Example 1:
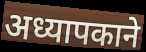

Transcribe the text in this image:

अध्यापकाने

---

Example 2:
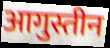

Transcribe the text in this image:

आगुस्तीन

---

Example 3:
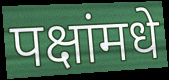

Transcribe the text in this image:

पक्षांमधे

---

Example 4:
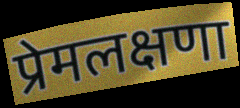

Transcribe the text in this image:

प्रेमलक्षणा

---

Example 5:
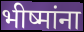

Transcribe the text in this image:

भीष्मांना